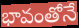
భావంతోనే